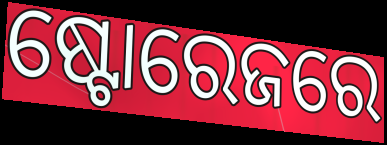
ଷ୍ଟୋରେଜରେ